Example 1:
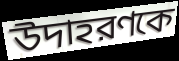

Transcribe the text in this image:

উদাহরণকে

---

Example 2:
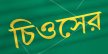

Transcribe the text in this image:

চিওসের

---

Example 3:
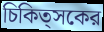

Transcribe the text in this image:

চিকিত্সকের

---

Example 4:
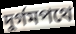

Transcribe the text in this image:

দুর্গমপথে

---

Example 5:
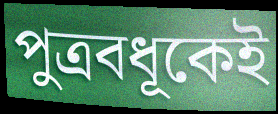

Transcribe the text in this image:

পুত্রবধূকেই